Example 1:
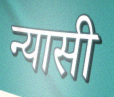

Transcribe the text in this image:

न्यासी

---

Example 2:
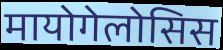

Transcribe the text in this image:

मायोगेलोसिस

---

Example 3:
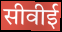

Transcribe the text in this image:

सीवीई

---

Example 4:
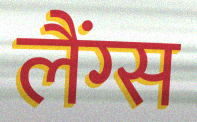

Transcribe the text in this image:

लैंग्स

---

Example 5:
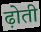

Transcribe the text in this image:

ढ़ोती